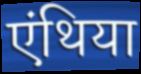
एंथिया